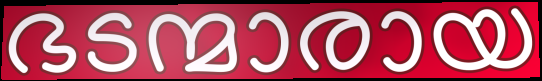
ഭടന്മാരായ